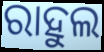
ରାହୁଲ